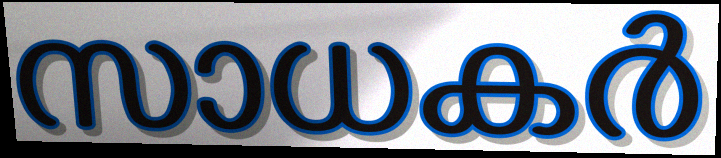
സാധകർ